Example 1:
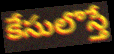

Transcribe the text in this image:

కేసులొస్తే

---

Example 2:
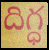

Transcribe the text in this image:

దిగ్ధ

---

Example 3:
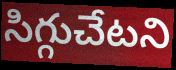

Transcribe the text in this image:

సిగ్గుచేటని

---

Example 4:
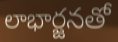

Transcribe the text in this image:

లాభార్జనతో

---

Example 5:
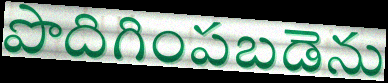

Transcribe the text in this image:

పొదిగింపబడెను